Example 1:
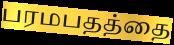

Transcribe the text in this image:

பரமபதத்தை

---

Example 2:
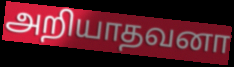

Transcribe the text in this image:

அறியாதவனா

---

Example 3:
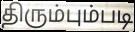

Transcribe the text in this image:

திரும்பும்படி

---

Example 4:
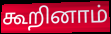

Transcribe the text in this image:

கூறினாம்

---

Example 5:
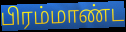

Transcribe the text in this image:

பிரம்மாண்ட